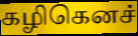
கழிகெனச்